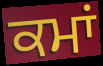
ਕਮਾਂ